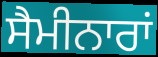
ਸੈਮੀਨਾਰਾਂ